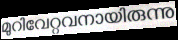
മുറിവേറ്റവനായിരുന്നു